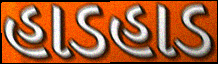
હાડહાડ